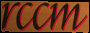
rccm